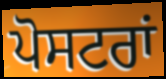
ਪੋਸਟਰਾਂ